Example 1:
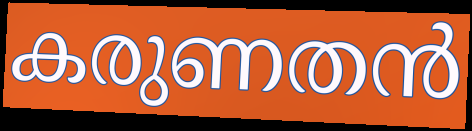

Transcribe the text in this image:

കരുണതൻ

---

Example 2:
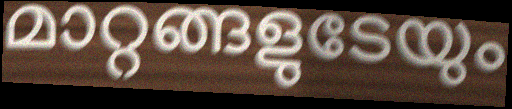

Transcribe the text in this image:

മാറ്റങ്ങളുടേയും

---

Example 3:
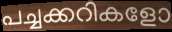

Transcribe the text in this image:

പച്ചക്കറികളോ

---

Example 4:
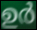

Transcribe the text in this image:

ഉർ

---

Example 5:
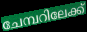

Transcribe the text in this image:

ചേമ്പറിലേക്ക്